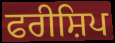
ਫਰੀਸ਼ਿਪ